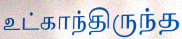
உட்காந்திருந்த